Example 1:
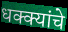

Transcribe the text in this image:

धक्क्यांचे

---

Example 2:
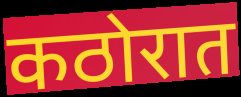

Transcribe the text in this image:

कठोरात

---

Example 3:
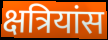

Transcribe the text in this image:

क्षत्रियांस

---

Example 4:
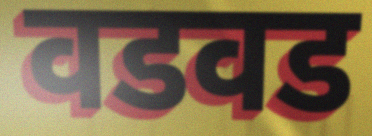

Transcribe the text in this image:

वडवड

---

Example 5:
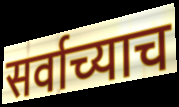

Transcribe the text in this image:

सर्वाच्याच